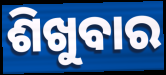
ଶିଖୁବାର